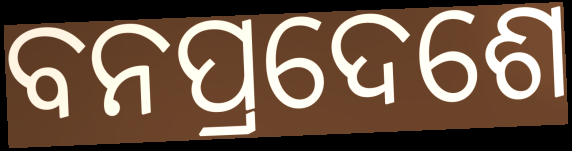
ବନପ୍ରଦେଶେ